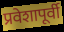
प्रवेशापूर्वी